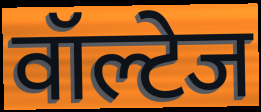
वॉल्टेज